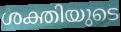
ശക്തിയുടെ